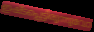
ഇഷ്ടപ്പെട്ടിരുന്നുവോ